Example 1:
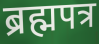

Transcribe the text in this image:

ब्रह्मपत्र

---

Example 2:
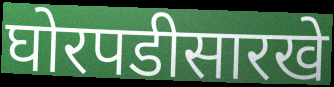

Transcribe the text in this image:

घोरपडीसारखे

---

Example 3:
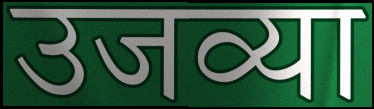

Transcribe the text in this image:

उजव्या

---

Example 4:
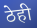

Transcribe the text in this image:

ठेही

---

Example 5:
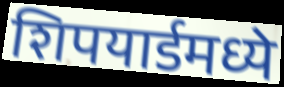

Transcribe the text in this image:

शिपयार्डमध्ये